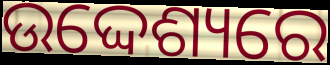
ଉଦ୍ଦେଶ୍ୟରେ